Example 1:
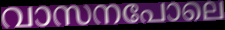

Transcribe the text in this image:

വാസനപോലെ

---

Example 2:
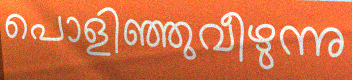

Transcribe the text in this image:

പൊളിഞ്ഞുവീഴുന്നു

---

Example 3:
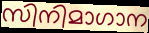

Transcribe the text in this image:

സിനിമാഗാന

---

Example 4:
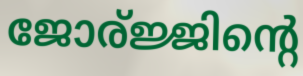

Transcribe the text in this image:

ജോര്ജ്ജിന്റെ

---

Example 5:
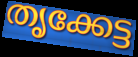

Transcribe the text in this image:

തൃക്കേട്ട